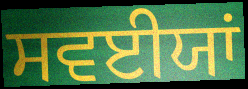
ਸਵਈਯਾਂ